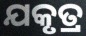
ଯକୃତ୍ର